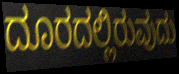
ದೂರದಲ್ಲಿರುವುದು